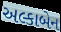
અલ્કાબેન